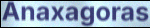
Anaxagoras